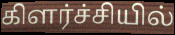
கிளர்ச்சியில்